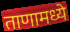
ताणामध्ये